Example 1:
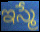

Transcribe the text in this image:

ఇస్మే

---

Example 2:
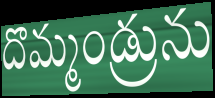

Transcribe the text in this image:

దొమ్మండ్రును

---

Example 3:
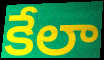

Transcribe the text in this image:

కేలా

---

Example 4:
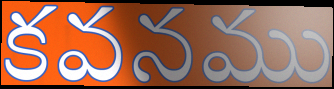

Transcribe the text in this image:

కవనము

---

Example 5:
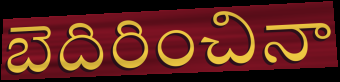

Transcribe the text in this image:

బెదిరించినా